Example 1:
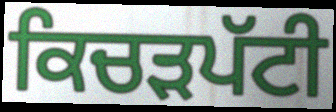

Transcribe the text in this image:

ਕਿਚੜਪੱਟੀ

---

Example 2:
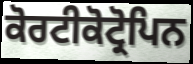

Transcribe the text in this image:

ਕੋਰਟੀਕੋਟ੍ਰੋਪਿਨ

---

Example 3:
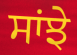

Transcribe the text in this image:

ਸਾਂਝੇ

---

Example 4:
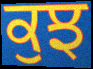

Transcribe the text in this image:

ਕੁਝ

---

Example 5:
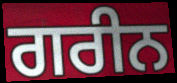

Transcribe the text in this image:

ਗਰੀਨ